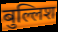
बुल्लिश